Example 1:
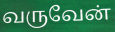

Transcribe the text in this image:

வருவேன்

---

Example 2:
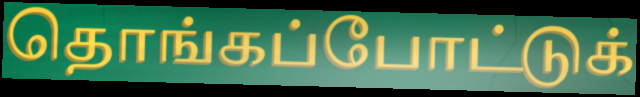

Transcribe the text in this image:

தொங்கப்போட்டுக்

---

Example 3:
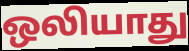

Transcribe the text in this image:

ஒலியாது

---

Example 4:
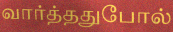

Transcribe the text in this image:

வார்த்ததுபோல்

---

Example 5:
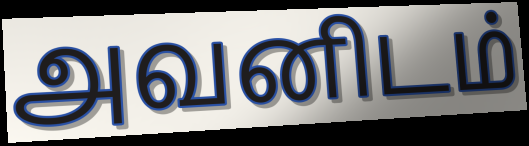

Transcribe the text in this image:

அவனிடம்